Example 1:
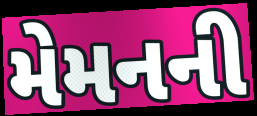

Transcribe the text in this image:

મેમનની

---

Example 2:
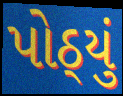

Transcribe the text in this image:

પોઠ્યું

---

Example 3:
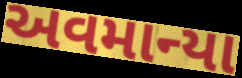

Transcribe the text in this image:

અવમાન્યા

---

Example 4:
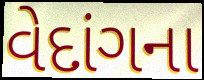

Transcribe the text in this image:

વેદાંગના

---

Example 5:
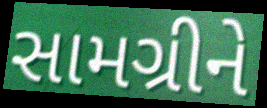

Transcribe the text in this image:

સામગ્રીને